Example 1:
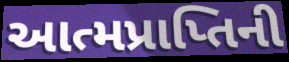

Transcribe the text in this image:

આત્મપ્રાપ્તિની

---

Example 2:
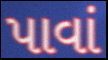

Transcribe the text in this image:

પાવાં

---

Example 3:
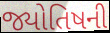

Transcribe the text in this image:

જ્યોતિષની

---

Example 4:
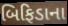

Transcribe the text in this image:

બિફિડાના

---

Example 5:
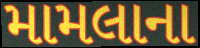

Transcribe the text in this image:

મામલાના